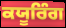
ਕਯੂਰਿੰਗ